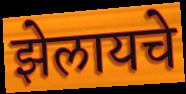
झेलायचे